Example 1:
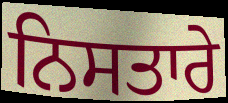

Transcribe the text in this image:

ਨਿਸਤਾਰੇ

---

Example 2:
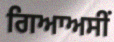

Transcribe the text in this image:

ਗਿਆਅਸੀਂ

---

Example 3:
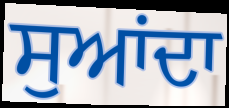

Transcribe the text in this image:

ਸੁਆਂਦਾ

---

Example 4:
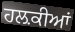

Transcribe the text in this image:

ਹਲ਼ਕੀਆਂ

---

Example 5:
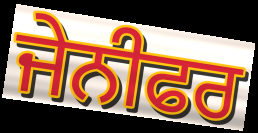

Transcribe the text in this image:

ਜੇਨੀਫਰ